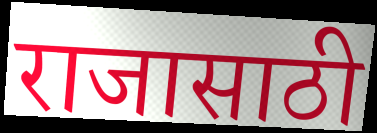
राजासाठी